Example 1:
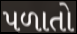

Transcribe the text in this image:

પળાતો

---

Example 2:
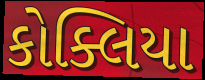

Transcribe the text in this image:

કોક્લિયા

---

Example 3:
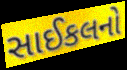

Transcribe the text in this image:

સાઈકલનો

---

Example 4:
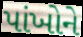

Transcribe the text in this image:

પાંખોને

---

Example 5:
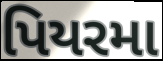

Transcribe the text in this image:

પિયરમા